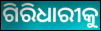
ଗିରିଧାରୀକୁ